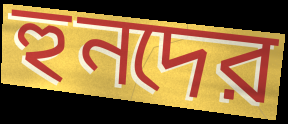
হুনদের